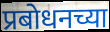
प्रबोधनच्या